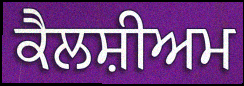
ਕੈਲਸ਼ੀਅਮ